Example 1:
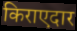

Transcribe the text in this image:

किराएदार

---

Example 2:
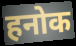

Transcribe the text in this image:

हनोक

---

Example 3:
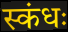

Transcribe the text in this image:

स्कंधः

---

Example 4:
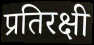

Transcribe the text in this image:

प्रतिरक्षी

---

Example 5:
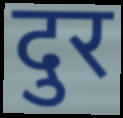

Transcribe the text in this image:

दुर